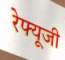
रेफ्यूजी